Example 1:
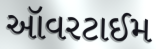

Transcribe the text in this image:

ઑવરટાઈમ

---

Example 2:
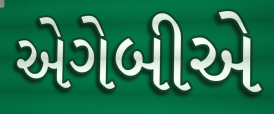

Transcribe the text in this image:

એગેબીએ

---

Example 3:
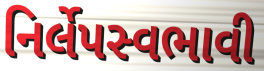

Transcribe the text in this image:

નિર્લેપસ્વભાવી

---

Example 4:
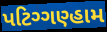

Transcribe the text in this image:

પટિગ્ગણ્હામ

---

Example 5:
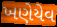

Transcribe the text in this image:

ખણેયેવ